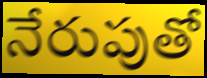
నేరుపుతో